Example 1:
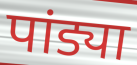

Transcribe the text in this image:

पांड्या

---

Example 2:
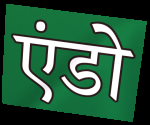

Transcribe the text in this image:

एंडो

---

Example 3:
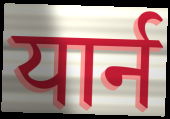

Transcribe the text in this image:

यार्न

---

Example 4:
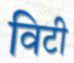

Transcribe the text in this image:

विटी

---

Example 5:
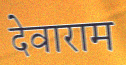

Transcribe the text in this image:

देवाराम